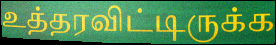
உத்தரவிட்டிருக்க